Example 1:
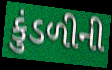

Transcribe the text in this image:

કુંડળીની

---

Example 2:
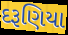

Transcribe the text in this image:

દરૂણિયા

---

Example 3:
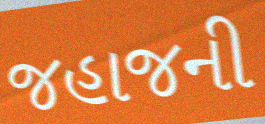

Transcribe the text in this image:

જહાજની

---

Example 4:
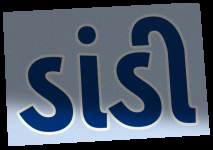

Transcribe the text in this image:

ડાંડી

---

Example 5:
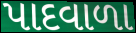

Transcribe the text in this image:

પાદવાળા